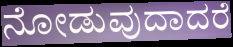
ನೋಡುವುದಾದರೆ